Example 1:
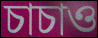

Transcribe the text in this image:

চাচাও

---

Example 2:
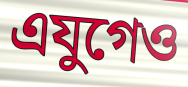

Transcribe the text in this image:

এযুগেও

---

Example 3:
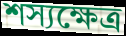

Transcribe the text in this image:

শস্যক্ষেত্র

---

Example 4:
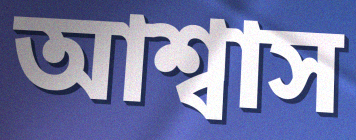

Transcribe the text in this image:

আশ্বাস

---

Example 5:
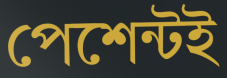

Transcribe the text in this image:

পেশেন্টই